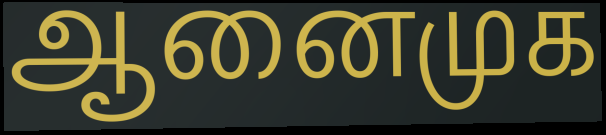
ஆனைமுக